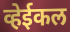
व्हेईकल